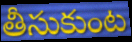
తీసుకుంట